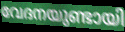
വേദനയുണ്ടായി